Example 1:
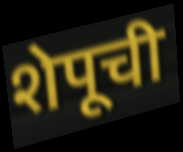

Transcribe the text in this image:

शेपूची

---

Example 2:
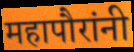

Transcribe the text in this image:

महापौरांनी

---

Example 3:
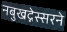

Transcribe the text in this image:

नबुखद्नेस्सरने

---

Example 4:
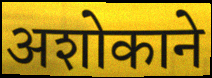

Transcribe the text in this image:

अशोकाने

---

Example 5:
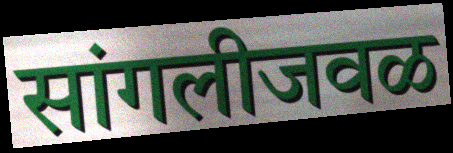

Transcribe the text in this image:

सांगलीजवळ